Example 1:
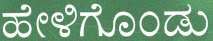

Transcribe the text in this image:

ಹೇಳಿಗೊಂಡು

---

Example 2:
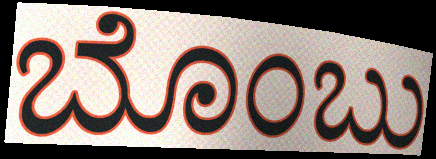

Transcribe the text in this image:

ಬೊಂಬು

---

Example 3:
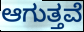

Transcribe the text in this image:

ಆಗುತ್ತವೆ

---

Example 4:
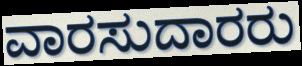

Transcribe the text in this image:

ವಾರಸುದಾರರು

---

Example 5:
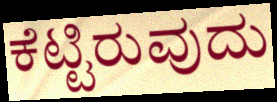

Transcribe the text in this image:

ಕೆಟ್ಟಿರುವುದು